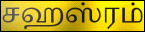
சஹஸ்ரம்